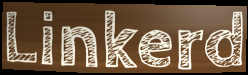
Linkerd